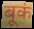
बूकं